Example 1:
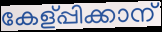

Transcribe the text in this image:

കേള്പ്പിക്കാന്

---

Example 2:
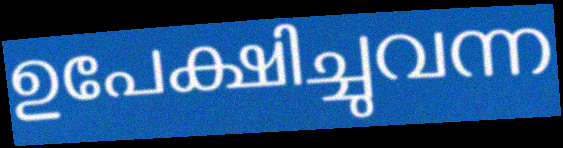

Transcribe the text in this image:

ഉപേക്ഷിച്ചുവന്ന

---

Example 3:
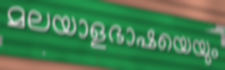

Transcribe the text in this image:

മലയാളഭാഷയെയും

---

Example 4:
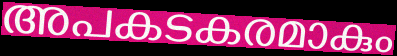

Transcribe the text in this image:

അപകടകരമാകും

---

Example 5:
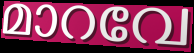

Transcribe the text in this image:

മാറവേ